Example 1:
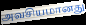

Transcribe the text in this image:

அவசியமானது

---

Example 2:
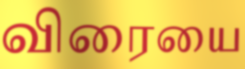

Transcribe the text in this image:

விரையை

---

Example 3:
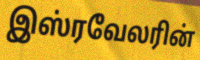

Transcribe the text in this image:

இஸ்ரவேலரின்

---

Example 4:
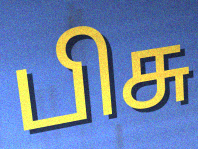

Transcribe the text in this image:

பிசு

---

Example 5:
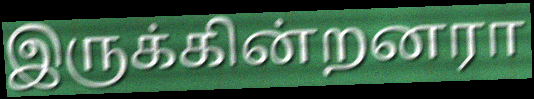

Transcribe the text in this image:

இருக்கின்றனரா